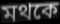
মথকে